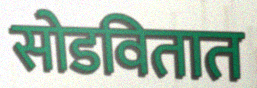
सोडवितात